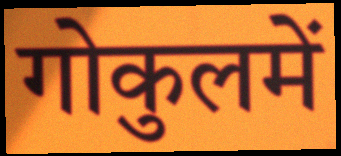
गोकुलमें